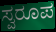
ಸ್ವರೂಪ